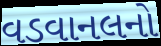
વડવાનલનો